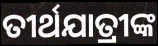
ତୀର୍ଥଯାତ୍ରୀଙ୍କ